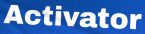
Activator